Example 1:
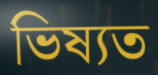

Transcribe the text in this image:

ভিষ্যত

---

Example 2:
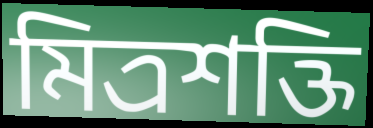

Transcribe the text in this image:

মিত্ৰশক্তি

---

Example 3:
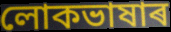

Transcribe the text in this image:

লোকভাষাৰ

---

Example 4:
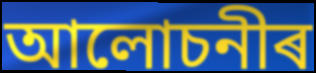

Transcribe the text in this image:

আলোচনীৰ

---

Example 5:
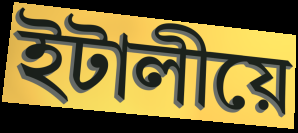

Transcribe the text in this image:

ইটালীয়ে